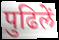
पुढिलें